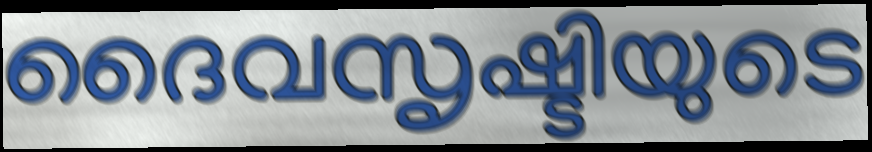
ദൈവസൃഷ്ടിയുടെ